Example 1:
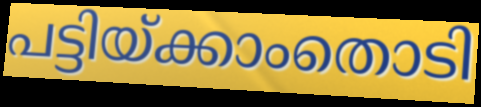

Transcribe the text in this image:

പട്ടിയ്ക്കാംതൊടി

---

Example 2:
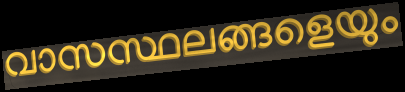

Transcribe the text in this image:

വാസസ്ഥലങ്ങളെയും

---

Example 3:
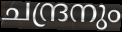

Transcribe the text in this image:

ചന്ദ്രനും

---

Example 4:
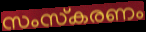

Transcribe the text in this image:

സംസ്‌കരണം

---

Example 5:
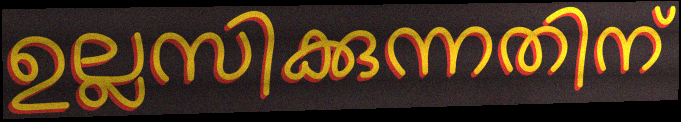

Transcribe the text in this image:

ഉല്ലസിക്കുന്നതിന്